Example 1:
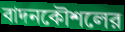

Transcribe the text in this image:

বাদনকৌশলের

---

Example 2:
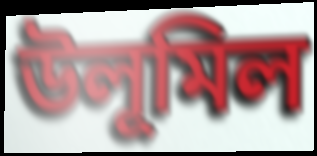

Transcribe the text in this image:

উলূমিল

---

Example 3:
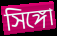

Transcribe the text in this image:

সিঙ্গো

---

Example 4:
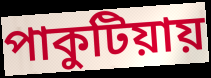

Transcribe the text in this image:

পাকুটিয়ায়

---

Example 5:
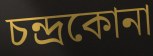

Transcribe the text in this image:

চন্দ্রকোনা